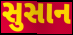
સુસાન